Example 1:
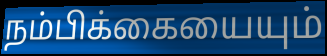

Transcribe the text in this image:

நம்பிக்கையையும்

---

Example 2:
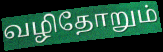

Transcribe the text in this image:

வழிதோறும்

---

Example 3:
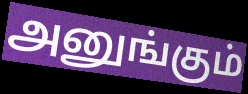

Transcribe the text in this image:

அனுங்கும்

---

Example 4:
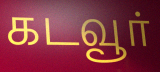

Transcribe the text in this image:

கடவூர்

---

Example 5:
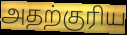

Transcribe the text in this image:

அதற்குரிய